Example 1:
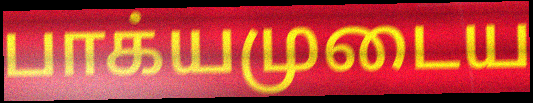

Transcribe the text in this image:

பாக்யமுடைய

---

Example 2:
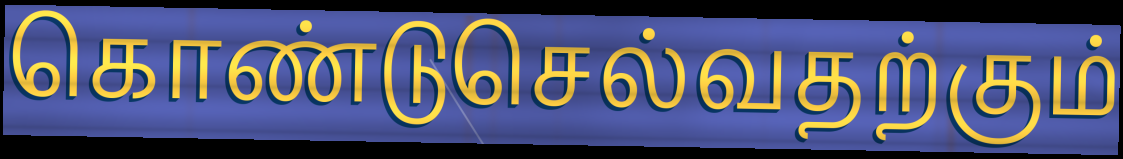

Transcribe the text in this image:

கொண்டுசெல்வதற்கும்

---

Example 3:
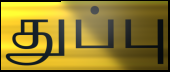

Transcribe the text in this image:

துப்பு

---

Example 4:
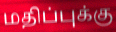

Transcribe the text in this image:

மதிப்புக்கு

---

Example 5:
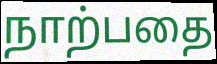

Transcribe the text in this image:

நாற்பதை